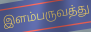
இளம்பருவத்து